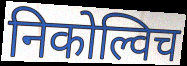
निकोल्विच